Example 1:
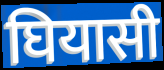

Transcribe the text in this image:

घियासी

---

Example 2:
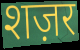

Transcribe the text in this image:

शज़र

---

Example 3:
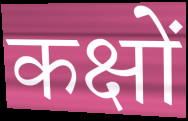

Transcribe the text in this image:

कक्षों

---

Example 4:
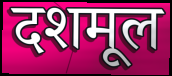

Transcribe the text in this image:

दशमूल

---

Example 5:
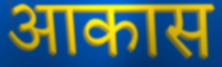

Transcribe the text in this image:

आकास